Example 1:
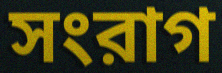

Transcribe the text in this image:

সংরাগ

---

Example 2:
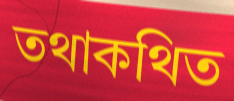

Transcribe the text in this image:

তথাকথিত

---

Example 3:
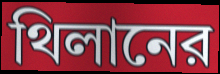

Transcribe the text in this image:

থিলানের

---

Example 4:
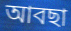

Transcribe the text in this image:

আবছা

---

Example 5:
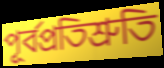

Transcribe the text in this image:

পূর্বপ্রতিশ্রুতি